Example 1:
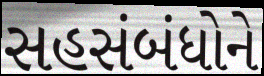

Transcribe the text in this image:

સહસંબંધોને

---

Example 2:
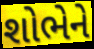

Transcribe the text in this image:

શોભેને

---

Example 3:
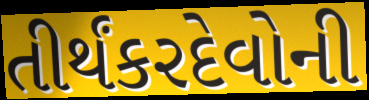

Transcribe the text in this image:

તીર્થંકરદેવોની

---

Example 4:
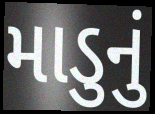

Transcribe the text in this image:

માડુનું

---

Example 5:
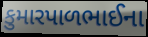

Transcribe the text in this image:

કુમારપાળભાઈના